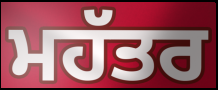
ਮਹੱਤਰ